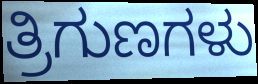
ತ್ರಿಗುಣಗಳು